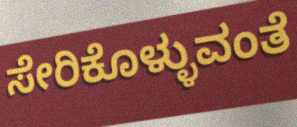
ಸೇರಿಕೊಳ್ಳುವಂತೆ